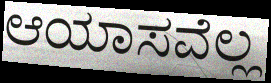
ಆಯಾಸವೆಲ್ಲ